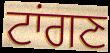
ਟਾਂਗਣ